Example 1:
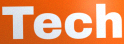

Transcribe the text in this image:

Tech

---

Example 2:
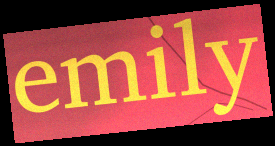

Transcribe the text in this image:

emily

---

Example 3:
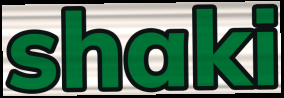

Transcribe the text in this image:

shaki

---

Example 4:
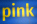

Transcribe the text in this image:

pink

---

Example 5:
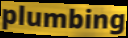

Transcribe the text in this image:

plumbing